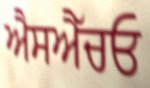
ਐਸਐੱਚਓ